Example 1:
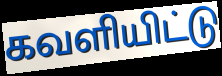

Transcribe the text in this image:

கவளியிட்டு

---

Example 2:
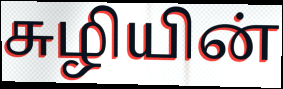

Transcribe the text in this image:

சுழியின்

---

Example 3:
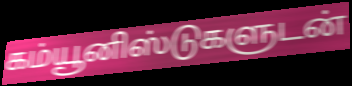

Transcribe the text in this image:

கம்யூனிஸ்டுகளுடன்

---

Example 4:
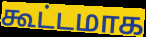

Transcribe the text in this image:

கூட்டமாக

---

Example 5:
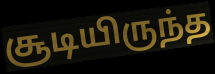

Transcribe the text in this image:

சூடியிருந்த